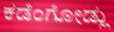
ಕಡೆಂಗೋಡ್ಲು